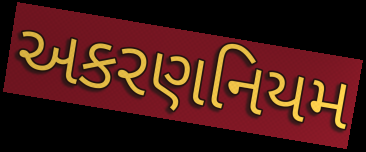
અકરણનિયમ